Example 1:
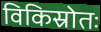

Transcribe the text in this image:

विकिस्रोतः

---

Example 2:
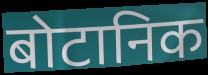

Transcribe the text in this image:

बोटानिक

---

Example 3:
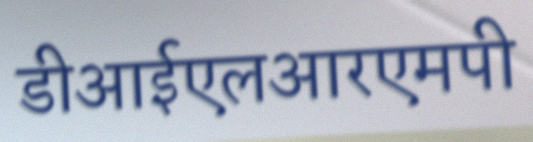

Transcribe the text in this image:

डीआईएलआरएमपी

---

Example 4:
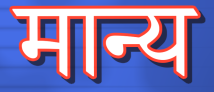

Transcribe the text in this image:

मान्य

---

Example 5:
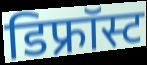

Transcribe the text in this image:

डिफ्रॉस्ट